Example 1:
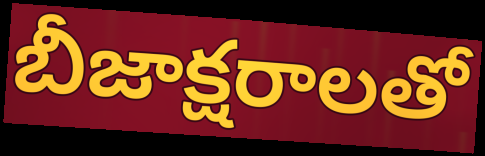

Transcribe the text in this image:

బీజాక్షరాలతో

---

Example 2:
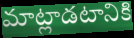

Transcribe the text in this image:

మాట్లాడటానికి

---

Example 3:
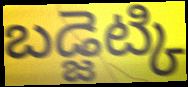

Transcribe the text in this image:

బడ్జెట్కి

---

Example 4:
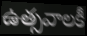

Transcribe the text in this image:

ఉత్సవాలకీ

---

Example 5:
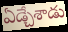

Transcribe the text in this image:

ఏడ్చేశాడు